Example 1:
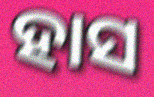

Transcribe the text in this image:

ହାସ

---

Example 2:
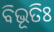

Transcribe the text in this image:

ବିଭୂତିଃ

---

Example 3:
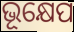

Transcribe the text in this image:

ଭୂକ୍ଷେପ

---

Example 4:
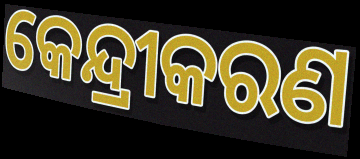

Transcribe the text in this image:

କେନ୍ଦ୍ରୀକରଣ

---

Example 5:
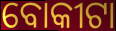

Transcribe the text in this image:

ବୋକୀଟା